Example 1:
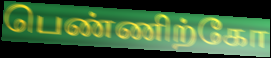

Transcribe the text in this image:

பெண்ணிற்கோ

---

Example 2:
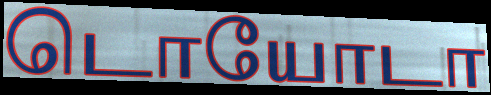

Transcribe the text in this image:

டொயோடா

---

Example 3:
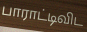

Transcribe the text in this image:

பாராட்டிவிட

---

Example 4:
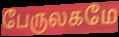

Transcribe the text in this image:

பேருலகமே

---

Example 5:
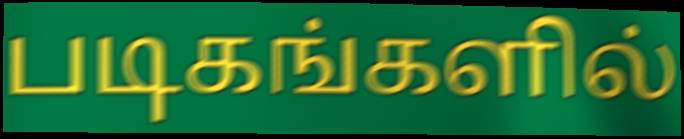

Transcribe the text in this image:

படிகங்களில்